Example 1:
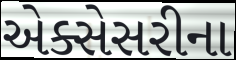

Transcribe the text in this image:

એક્સેસરીના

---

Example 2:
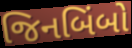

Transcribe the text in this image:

જિનબિંબો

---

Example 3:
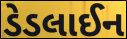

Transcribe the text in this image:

ડેડલાઈન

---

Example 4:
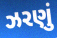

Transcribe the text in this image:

ઝરણું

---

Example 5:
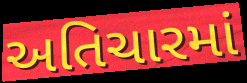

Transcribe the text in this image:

અતિચારમાં